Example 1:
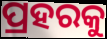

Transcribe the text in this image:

ପ୍ରହରକୁ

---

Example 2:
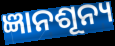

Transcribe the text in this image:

ଜ୍ଞାନଶୂନ୍ୟ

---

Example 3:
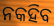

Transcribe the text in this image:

ନକହିବ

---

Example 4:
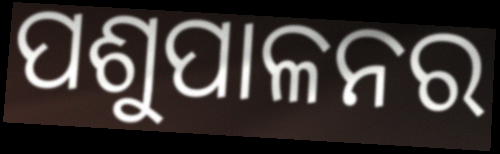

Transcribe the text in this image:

ପଶୁପାଳନର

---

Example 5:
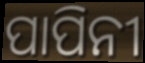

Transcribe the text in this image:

ପାପିନୀ